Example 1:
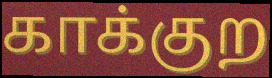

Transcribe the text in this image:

காக்குற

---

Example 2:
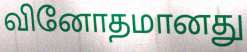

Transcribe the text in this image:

வினோதமானது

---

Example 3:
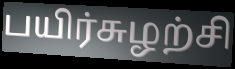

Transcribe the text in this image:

பயிர்சுழற்சி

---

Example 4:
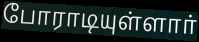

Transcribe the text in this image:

போராடியுள்ளார்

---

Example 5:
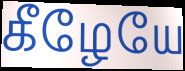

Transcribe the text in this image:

கீழேயே